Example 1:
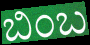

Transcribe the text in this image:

ಬಿಂಬ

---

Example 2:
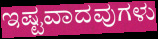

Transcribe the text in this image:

ಇಷ್ಟವಾದವುಗಳು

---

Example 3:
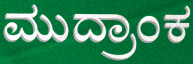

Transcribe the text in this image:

ಮುದ್ರಾಂಕ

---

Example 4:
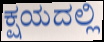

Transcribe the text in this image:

ಕ್ಷಯದಲ್ಲಿ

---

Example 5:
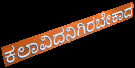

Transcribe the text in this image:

ಕಲಾವಿದನಿಗಿರಬೇಕಾದ